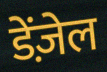
डेंज़ेल